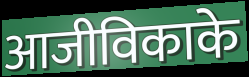
आजीविकाके